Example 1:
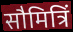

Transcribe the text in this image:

सौमित्रिं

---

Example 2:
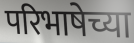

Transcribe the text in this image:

परिभाषेच्या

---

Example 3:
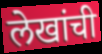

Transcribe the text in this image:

लेखांची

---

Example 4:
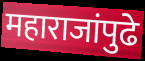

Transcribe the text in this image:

महाराजांपुढे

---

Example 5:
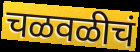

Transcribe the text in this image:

चळवळीचं